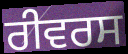
ਰੀਵਰਸ